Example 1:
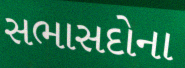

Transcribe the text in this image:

સભાસદોના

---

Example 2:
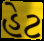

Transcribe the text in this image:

હેટ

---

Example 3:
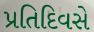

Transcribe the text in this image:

પ્રતિદિવસે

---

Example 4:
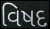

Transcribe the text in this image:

વિષદ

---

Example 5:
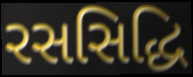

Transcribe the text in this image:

રસસિદ્ધિ